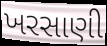
ખરસાણી